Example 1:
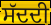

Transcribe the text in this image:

ਸੱਦਦੀ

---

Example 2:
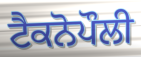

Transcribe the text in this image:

ਟੈਕਨੋਪੌਲੀ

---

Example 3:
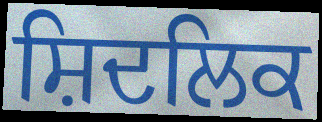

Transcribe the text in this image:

ਸ਼ਿਦਲਿਕ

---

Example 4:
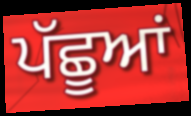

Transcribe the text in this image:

ਪੱਛੂਆਂ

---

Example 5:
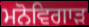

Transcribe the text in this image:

ਮਨੋਵਿਗਾੜ